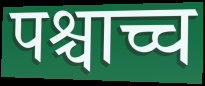
पश्चाच्च